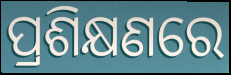
ପ୍ରଶିକ୍ଷଣରେ